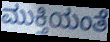
ಮುಕ್ತಿಯಂತೆ